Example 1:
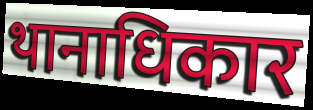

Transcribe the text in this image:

थानाधिकार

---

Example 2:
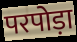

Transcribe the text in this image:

परपोड़ा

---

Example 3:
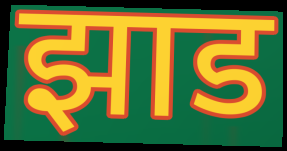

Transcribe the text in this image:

झाड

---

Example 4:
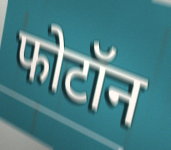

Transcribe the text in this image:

फोटॉन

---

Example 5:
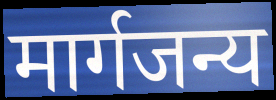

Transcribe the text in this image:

मार्गजन्य